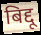
बिद्दू